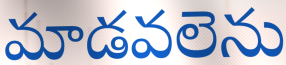
మాడవలెను